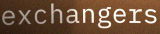
exchangers